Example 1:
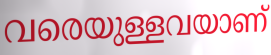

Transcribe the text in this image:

വരെയുള്ളവയാണ്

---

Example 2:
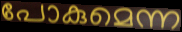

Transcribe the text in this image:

പോകുമെന്ന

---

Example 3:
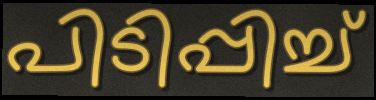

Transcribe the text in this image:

പിടിപ്പിച്ച്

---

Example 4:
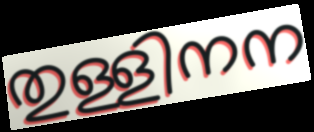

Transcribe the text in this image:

തുള്ളിനന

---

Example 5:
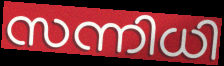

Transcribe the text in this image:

സന്നിധി